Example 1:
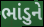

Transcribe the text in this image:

ભાંડુને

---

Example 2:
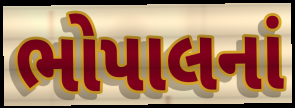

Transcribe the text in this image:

ભોપાલનાં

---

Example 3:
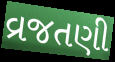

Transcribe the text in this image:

વ્રજતણી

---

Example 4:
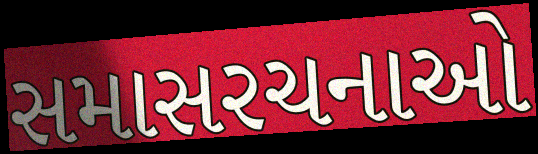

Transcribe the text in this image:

સમાસરચનાઓ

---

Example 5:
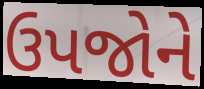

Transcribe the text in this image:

ઉપજોને